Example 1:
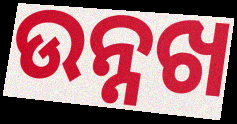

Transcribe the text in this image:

ଉନ୍ନଖ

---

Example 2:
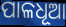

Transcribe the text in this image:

ପାଳଧୂଆ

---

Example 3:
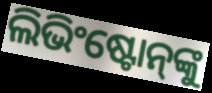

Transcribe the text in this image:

ଲିଭିଂଷ୍ଟୋନ୍‌ଙ୍କୁ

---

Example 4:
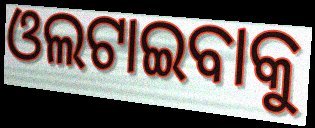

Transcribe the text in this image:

ଓଲଟାଇବାକୁ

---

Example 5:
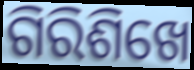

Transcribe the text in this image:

ଗିରିଶିଖେ